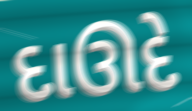
દાઊદે